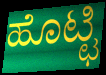
ಹೊಟ್ಟಿ